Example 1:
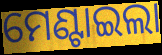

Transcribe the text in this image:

ମେଣ୍ଟାଇଲା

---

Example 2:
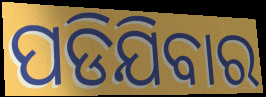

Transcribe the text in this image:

ପଡିଯିବାର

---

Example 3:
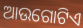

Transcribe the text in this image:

ଆଉଗୋଟିଏ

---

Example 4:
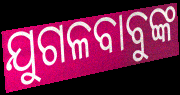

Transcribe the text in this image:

ଯୁଗଳବାବୁଙ୍କ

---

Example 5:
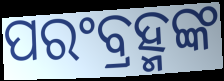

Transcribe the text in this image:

ପରଂବ୍ରହ୍ମଙ୍କ